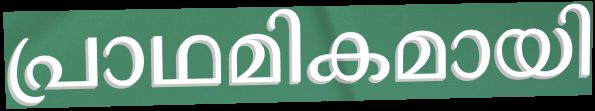
പ്രാഥമികമായി